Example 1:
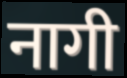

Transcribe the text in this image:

नागी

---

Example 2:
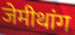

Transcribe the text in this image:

जेमीथांग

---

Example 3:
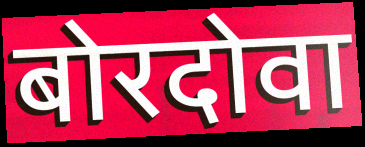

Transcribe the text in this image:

बोरदोवा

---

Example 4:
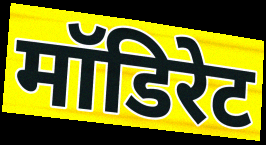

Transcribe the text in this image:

मॉडिरेट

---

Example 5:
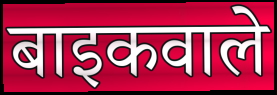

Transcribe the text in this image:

बाइकवाले